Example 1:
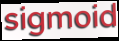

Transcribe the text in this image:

sigmoid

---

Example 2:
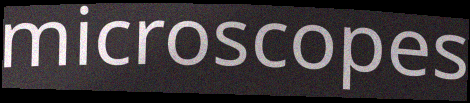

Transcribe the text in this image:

microscopes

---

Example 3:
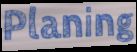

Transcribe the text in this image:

Planing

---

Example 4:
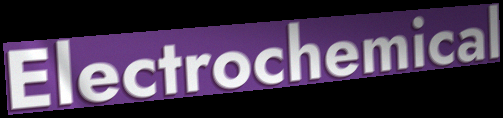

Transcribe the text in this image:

Electrochemical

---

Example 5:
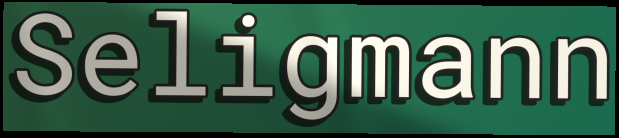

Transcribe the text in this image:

Seligmann